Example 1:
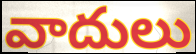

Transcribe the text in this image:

వాదులు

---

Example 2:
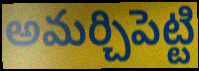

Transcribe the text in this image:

అమర్చిపెట్టి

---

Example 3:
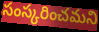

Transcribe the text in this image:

సంస్కరించమని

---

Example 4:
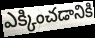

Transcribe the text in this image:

ఎక్కించడానికి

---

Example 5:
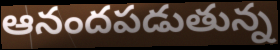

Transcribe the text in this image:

ఆనందపడుతున్న